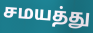
சமயத்து